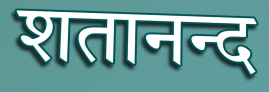
शतानन्द